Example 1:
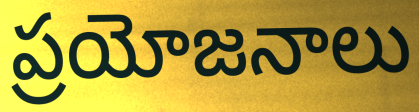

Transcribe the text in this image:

ప్రయోజనాలు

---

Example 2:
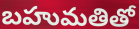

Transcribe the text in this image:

బహుమతితో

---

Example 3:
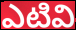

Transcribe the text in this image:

ఎటివి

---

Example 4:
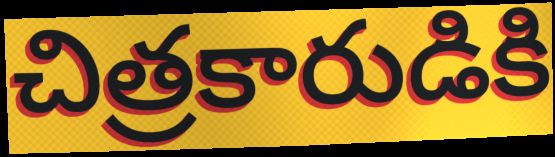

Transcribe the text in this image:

చిత్రకారుడికి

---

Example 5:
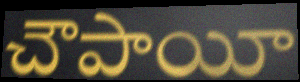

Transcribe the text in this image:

చౌపాయీ